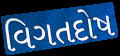
વિગતદોષ